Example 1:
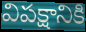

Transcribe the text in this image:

విపక్షానికి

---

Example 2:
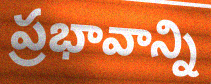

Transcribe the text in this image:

ప్రభావాన్ని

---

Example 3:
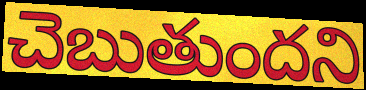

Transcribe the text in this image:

చెబుతుందని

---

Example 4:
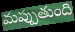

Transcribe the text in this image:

మప్పుతుంది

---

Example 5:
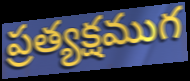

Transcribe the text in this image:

ప్రత్యక్షముగ